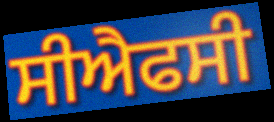
ਸੀਐਫਸੀ